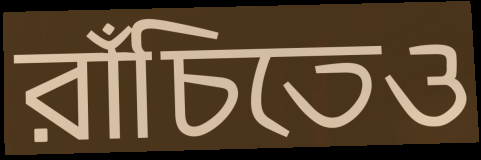
রাঁচিতেও